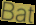
Bat